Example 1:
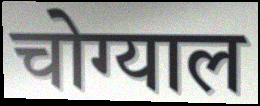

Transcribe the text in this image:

चोग्याल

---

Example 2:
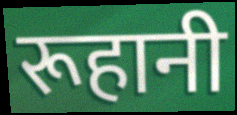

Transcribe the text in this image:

रूहानी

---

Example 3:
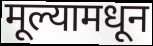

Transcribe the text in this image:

मूल्यामधून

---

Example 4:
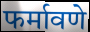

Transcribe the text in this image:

फर्मावणे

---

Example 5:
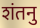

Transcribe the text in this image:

शंतनु